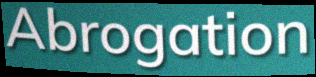
Abrogation